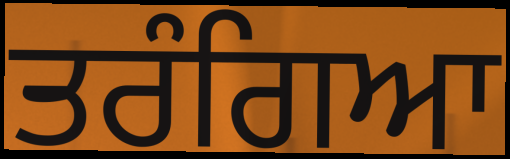
ਤਰੰਗਿਆ